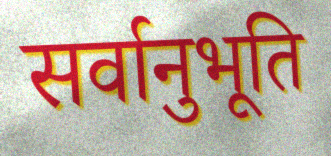
सर्वानुभूति